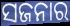
ସଜନାର